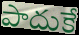
పాదుకే